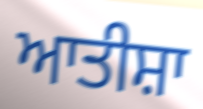
ਆਤੀਸ਼ਾ